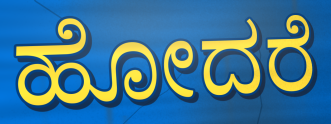
ಹೋದರೆ